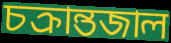
চক্রান্তজাল